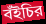
বঁইচির